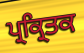
ਪ੍ਰਕ੍ਰਿਤਕ